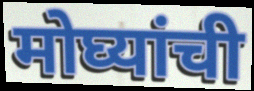
मोघ्यांची